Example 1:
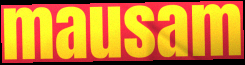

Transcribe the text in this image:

mausam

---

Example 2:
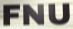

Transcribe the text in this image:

FNU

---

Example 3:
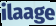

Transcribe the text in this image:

ilaage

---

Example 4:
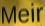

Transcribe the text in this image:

Meir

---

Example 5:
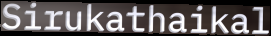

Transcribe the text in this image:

Sirukathaikal